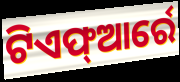
ଟିଏଫ୍ଆର୍ରେ